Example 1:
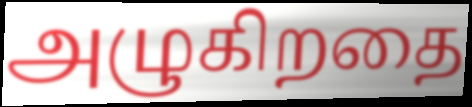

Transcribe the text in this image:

அழுகிறதை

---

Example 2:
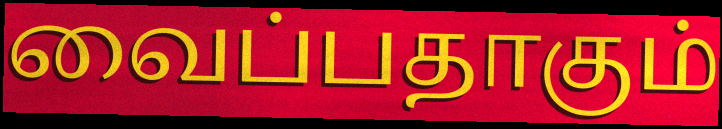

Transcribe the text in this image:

வைப்பதாகும்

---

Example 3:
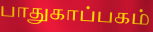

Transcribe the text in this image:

பாதுகாப்பகம்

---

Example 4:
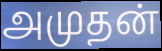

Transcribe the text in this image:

அமுதன்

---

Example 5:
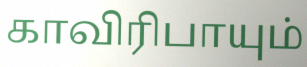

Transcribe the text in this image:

காவிரிபாயும்